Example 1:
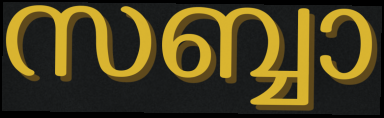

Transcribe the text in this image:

സബ്ബാ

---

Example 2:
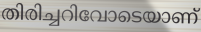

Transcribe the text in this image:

തിരിച്ചറിവോടെയാണ്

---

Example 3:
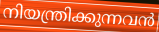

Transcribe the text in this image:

നിയന്ത്രിക്കുന്നവൻ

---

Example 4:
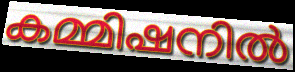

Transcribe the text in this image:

കമ്മിഷനിൽ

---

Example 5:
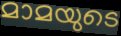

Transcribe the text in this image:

മാമയുടെ